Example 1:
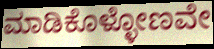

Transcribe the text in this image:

ಮಾಡಿಕೊಳ್ಳೋಣವೇ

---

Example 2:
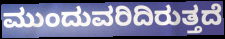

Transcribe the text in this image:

ಮುಂದುವರಿದಿರುತ್ತದೆ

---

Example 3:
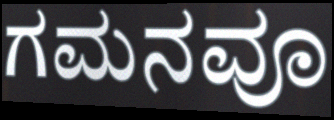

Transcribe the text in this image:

ಗಮನವೂ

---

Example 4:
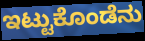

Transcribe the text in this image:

ಇಟ್ಟುಕೊಂಡೆನು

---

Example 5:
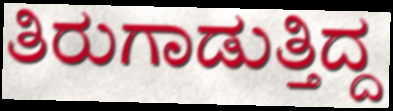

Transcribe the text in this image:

ತಿರುಗಾಡುತ್ತಿದ್ದ